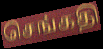
செங்கதி